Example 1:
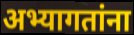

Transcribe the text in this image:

अभ्यागतांना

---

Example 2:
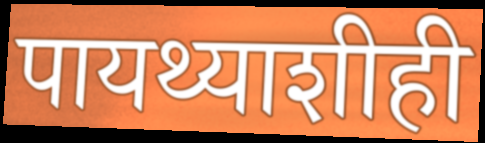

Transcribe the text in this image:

पायथ्याशीही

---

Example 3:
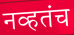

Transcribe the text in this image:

नव्हतंच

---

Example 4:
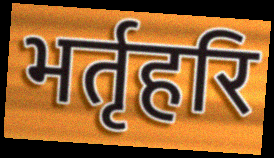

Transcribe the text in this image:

भर्तृहरि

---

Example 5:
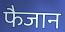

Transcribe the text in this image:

फैजान